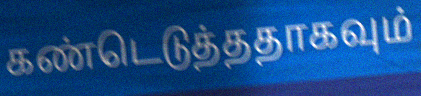
கண்டெடுத்ததாகவும்